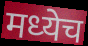
मध्‍येच